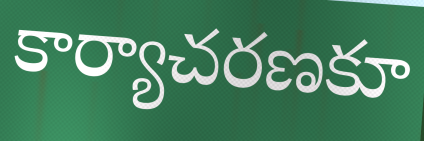
కార్యాచరణకూ